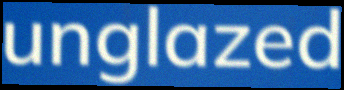
unglazed